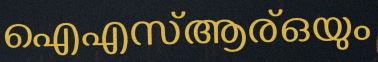
ഐഎസ്ആര്ഒയും